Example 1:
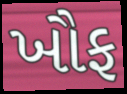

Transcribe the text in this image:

ખૌફ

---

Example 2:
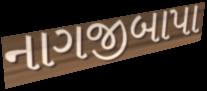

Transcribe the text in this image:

નાગજીબાપા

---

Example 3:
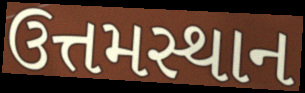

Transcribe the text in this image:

ઉત્તમસ્થાન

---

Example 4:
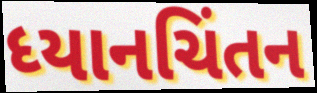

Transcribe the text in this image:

ધ્યાનચિંતન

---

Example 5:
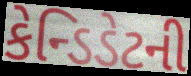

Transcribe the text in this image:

કેન્ડિડેટની